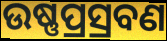
ଉଷ୍ଣପ୍ରସ୍ରବଣ